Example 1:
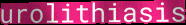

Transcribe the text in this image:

urolithiasis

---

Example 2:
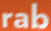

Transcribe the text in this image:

rab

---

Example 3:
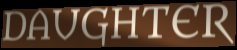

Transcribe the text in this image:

DAUGHTER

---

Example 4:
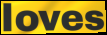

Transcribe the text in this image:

loves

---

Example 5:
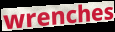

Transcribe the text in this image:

wrenches